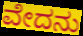
ವೇದನು